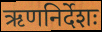
ऋणनिर्देशः